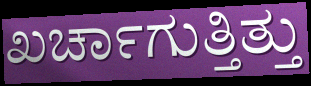
ಖರ್ಚಾಗುತ್ತಿತ್ತು